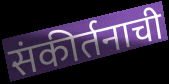
संकीर्तनाची